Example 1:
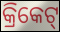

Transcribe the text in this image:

କ୍ରିକେଟ୍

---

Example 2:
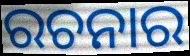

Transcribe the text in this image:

ରଚନାର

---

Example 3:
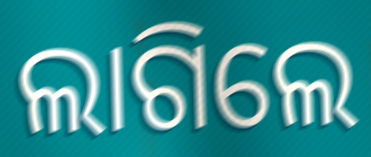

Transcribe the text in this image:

ଲାଗିଲେ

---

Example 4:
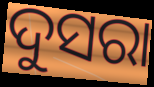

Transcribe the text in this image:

ଦୁସରା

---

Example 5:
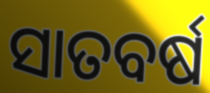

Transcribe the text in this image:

ସାତବର୍ଷ